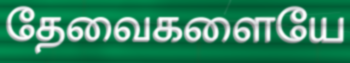
தேவைகளையே